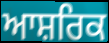
ਆਸ਼ਰਿਕ